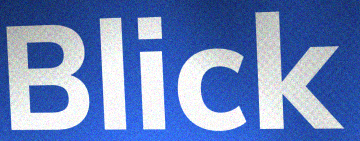
Blick